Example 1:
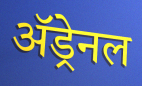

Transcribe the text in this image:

ॲड्रेनल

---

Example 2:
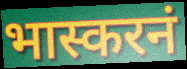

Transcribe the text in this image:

भास्करनं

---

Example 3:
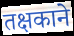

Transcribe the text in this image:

तक्षकाने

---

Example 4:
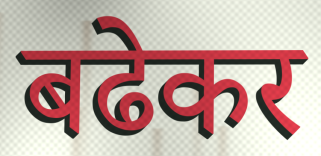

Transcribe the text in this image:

बढेकर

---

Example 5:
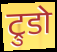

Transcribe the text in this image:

ट्रुडो